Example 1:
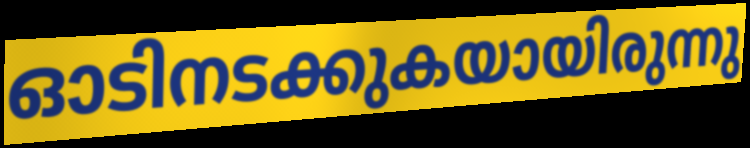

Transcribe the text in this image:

ഓടിനടക്കുകയായിരുന്നു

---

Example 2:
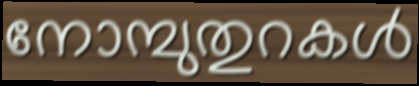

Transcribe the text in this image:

നോമ്പുതുറകൾ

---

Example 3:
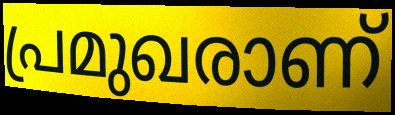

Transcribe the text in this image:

പ്രമുഖരാണ്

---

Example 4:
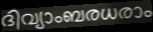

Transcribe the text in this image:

ദിവ്യാംബരധരാം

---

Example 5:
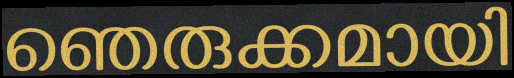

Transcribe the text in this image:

ഞെരുക്കമായി